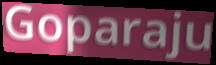
Goparaju